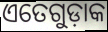
ଏତେଗୁଡ଼ାକ